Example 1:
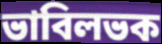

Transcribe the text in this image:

ভাবিলভক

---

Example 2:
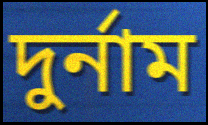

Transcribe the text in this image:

দুৰ্নাম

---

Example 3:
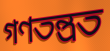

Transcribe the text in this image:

গণতন্ত্ৰত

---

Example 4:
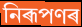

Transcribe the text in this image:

নিৰূপণৰ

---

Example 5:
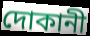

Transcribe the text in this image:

দোকানী